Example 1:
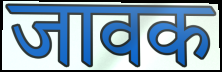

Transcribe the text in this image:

जावक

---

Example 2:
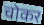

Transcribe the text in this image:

चोकर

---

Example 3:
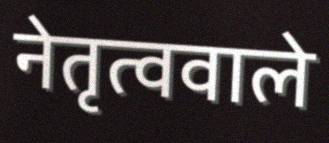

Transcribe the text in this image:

नेतृत्ववाले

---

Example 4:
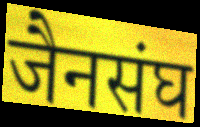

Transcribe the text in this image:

जैनसंघ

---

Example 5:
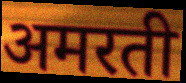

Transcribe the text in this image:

अमरती